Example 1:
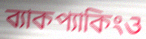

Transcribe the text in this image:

ব্যাকপ্যাকিংও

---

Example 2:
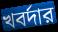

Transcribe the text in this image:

খবর্দার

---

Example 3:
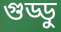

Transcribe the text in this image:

গুড্ডু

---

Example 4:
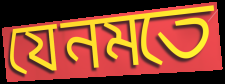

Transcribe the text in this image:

যেনমতে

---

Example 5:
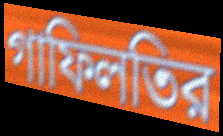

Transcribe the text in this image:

গাফিলতির